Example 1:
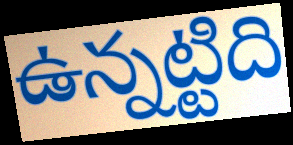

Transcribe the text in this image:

ఉన్నట్టిది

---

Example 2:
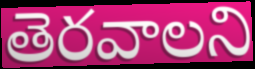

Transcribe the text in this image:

తెరవాలని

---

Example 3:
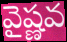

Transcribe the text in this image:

వైష్ణవ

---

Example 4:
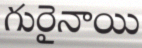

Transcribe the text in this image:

గురైనాయి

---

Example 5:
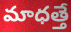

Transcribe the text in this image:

మాధత్తే